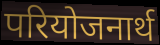
परियोजनार्थ